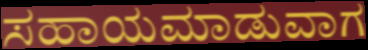
ಸಹಾಯಮಾಡುವಾಗ